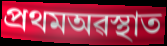
প্ৰথমঅৱস্থাত